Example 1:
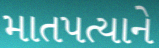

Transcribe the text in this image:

માતપત્યાને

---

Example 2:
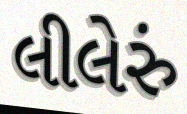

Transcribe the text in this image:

લીલેરું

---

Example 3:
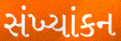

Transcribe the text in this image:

સંખ્યાંકન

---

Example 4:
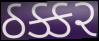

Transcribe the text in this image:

ઠક્કર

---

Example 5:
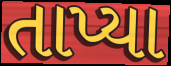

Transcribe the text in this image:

તાપ્યા